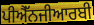
ਪੀਐੱਨਜੀਆਰਬੀ